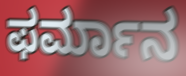
ಫರ್ಮಾನ